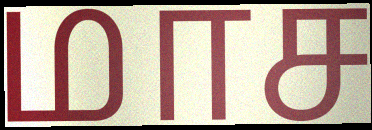
மாச